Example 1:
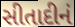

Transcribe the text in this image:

સીતાદીનં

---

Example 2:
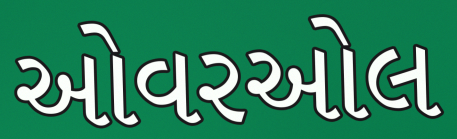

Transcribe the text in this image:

ઓવરઓલ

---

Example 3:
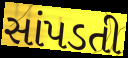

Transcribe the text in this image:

સાંપડતી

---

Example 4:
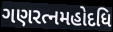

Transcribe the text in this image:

ગણરત્નમહોદધિ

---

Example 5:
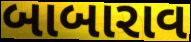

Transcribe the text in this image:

બાબારાવ